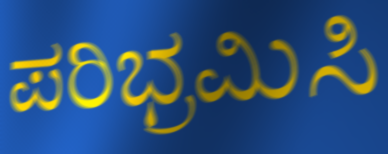
ಪರಿಭ್ರಮಿಸಿ